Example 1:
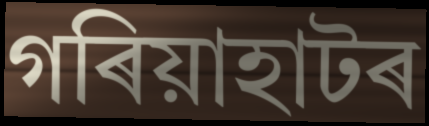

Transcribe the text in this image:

গৰিয়াহাটৰ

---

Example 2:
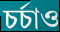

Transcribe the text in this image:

চৰ্চাও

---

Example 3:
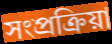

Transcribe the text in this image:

সংপ্ৰক্ৰিয়া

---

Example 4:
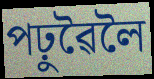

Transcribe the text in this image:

পঢ়ুৱৈলৈ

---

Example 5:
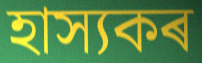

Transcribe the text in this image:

হাস্যকৰ